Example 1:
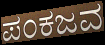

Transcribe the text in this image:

ಪಂಕಜವ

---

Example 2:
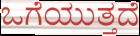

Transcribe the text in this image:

ಒಗೆಯುತ್ತದೆ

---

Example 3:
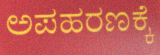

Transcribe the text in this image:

ಅಪಹರಣಕ್ಕೆ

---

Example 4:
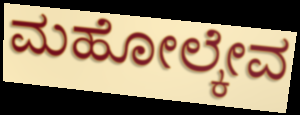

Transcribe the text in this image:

ಮಹೋಲ್ಕೇವ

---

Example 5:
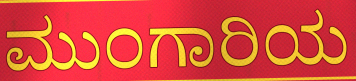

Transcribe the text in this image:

ಮುಂಗಾರಿಯ